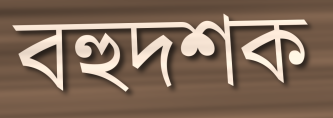
বহুদশক